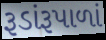
રૂડાંરૂપાળાં